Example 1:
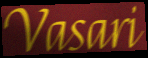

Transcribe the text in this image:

Vasari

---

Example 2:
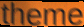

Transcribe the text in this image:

theme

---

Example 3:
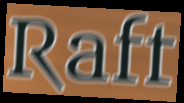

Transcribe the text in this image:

Raft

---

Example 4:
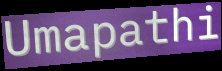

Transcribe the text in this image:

Umapathi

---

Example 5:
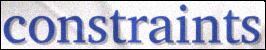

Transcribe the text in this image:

constraints